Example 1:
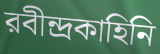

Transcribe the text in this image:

রবীন্দ্রকাহিনি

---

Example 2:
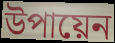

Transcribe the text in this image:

উপায়েন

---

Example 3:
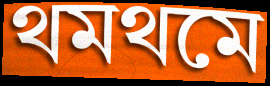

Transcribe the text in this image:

থমথমে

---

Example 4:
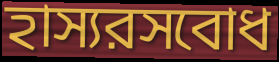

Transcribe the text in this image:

হাস্যরসবোধ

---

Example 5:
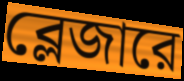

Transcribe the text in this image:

ব্লেজারে